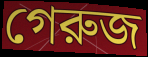
গেরুজ